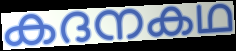
കദനകഥ